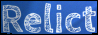
Relict